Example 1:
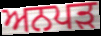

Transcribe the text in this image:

ਅਨਪੜ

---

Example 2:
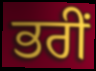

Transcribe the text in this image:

ਭਰੀਂ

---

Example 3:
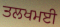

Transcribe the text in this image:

ਤਲਖਮਈ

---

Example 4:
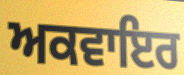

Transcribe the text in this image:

ਅਕਵਾਇਰ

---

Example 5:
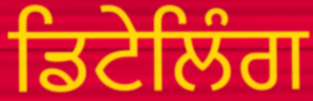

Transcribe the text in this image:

ਡਿਟੇਲਿੰਗ